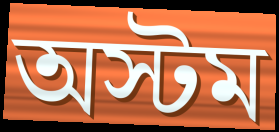
অস্টম